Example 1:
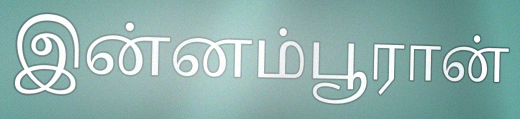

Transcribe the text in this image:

இன்னம்பூரான்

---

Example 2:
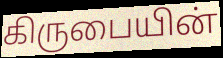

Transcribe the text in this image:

கிருபையின்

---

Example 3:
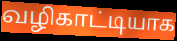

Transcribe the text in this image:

வழிகாட்டியாக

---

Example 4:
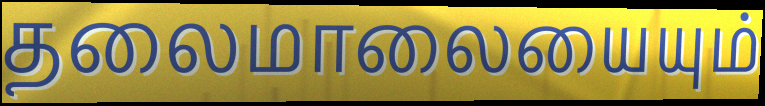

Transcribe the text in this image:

தலைமாலையையும்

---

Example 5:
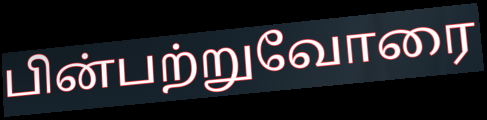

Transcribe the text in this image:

பின்பற்றுவோரை